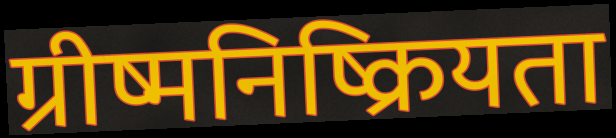
ग्रीष्मनिष्क्रियता